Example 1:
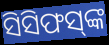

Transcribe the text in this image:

ସିସିଫସ୍‌ଙ୍କ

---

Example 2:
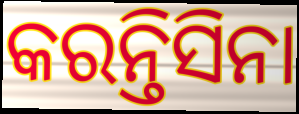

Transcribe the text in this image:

କରନ୍ତିସିନା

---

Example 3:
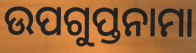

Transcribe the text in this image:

ଉପଗୁପ୍ତନାମା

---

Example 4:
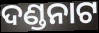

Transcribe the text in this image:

ଦଣ୍ଡନାଟ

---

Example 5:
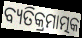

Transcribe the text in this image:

ବ୍ୟତିକ୍ରମାତ୍ମକ